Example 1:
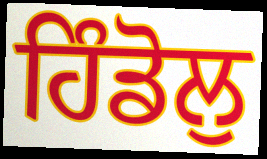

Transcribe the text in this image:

ਹਿੰਡੋਲੁ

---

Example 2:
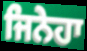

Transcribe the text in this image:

ਜਿਨੇਹਾ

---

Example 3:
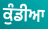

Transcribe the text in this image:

ਕੁੰਡੀਆ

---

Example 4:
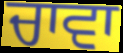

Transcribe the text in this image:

ਚਾਵਾ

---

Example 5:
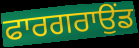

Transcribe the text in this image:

ਫਾਰਗਰਾਉਂਡ